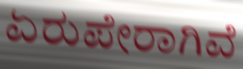
ಏರುಪೇರಾಗಿವೆ